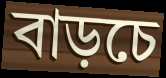
বাড়চে